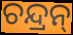
ଚନ୍ଦ୍ରନ୍